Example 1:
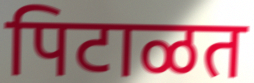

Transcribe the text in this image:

पिटाळत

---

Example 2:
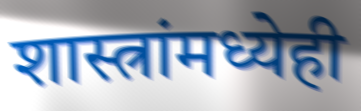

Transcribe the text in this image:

शास्त्रांमध्येही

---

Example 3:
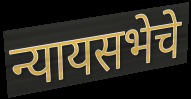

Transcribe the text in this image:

न्यायसभेचे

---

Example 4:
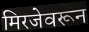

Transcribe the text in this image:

मिरजेवरून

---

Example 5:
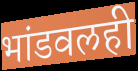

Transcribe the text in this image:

भांडवलही